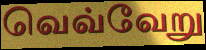
வெவ்வேறு